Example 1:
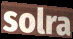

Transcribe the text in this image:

solra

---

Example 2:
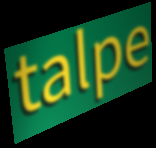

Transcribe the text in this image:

talpe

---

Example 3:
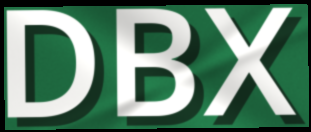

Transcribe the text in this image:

DBX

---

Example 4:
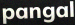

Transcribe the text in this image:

pangal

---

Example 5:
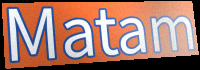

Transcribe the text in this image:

Matam